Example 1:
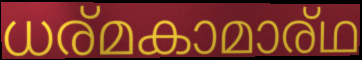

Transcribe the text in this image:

ധര്മകാമാര്ഥ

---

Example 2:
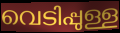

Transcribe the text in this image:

വെടിപ്പുള്ള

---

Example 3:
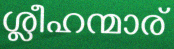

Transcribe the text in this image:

ശ്ലീഹന്മാര്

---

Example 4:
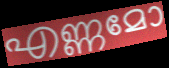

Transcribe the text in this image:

എണ്ണമോ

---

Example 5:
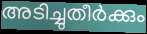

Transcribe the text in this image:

അടിച്ചുതീർക്കും